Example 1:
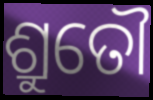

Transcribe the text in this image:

ଶ୍ରୁତୌ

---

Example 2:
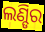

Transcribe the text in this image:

ଲଣ୍ଡିର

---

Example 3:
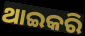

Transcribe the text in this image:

ଥାଇକରି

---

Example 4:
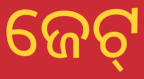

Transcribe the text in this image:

ଜେଟ୍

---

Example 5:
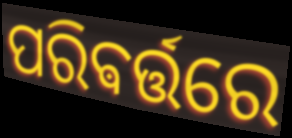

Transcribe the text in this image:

ପରିଵର୍ତ୍ତରେ